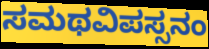
ಸಮಥವಿಪಸ್ಸನಂ